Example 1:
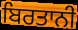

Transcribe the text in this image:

ਬਿਰਤਾਨੀ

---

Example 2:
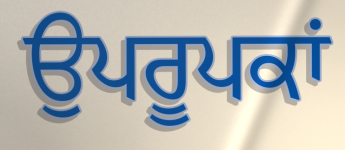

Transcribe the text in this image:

ਉਪਰੂਪਕਾਂ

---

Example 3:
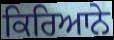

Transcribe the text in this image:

ਕਿਰਿਆਨੇ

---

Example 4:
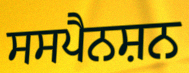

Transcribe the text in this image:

ਸਸਪੈਨਸ਼ਨ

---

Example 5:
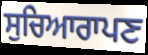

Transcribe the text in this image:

ਸੁਚਿਆਰਾਪਣ